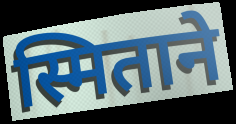
स्मिताने